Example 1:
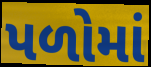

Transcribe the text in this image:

પળોમાં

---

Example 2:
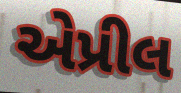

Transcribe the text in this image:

એપ્રીલ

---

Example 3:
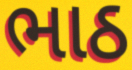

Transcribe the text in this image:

ભાઠ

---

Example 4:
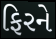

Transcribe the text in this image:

ફિરને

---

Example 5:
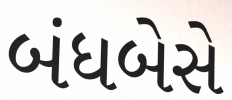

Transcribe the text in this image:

બંધબેસે